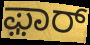
ಫ಼ಾರ್